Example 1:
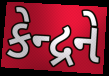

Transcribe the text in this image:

કેન્દ્રને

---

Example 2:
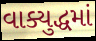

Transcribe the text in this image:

વાક્યુદ્ધમાં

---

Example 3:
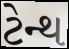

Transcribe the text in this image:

ટેન્થ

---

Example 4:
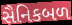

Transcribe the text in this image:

સૈનિકબળ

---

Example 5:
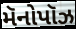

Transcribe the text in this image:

મૅનોપૉઝ